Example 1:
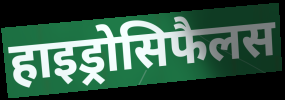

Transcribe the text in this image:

हाइड्रोसिफैलस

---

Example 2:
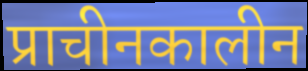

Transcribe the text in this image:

प्राचीनकालीन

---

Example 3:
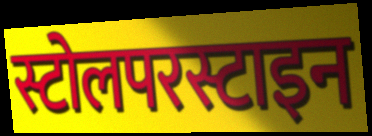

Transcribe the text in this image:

स्टोलपरस्टाइन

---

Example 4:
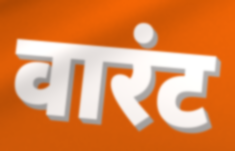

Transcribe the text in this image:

वारंट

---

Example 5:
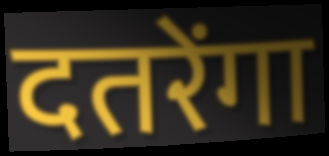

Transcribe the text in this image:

दतरेंगा